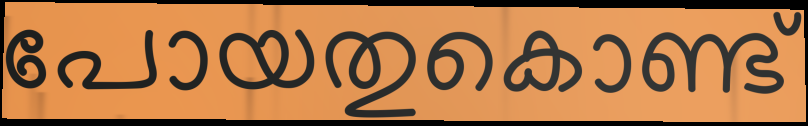
പോയതുകൊണ്ട്